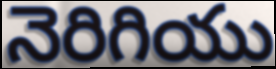
నెరిగియు